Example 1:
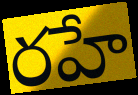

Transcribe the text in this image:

రహే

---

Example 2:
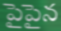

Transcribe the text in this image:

పైపైన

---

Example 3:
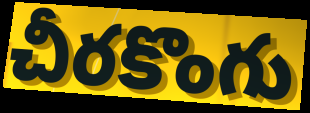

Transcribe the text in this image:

చీరకొంగు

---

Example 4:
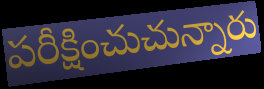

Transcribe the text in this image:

పరీక్షించుచున్నారు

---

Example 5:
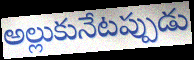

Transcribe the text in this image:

అల్లుకునేటప్పుడు